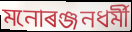
মনোৰঞ্জনধৰ্মী